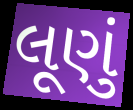
લૂણું